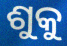
ଶୁକୁ